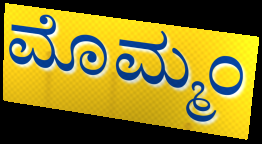
ಮೊಮ್ಮಂ